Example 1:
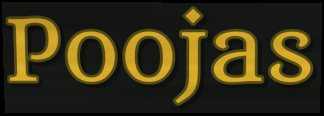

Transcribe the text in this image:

Poojas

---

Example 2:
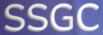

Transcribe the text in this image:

SSGC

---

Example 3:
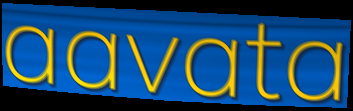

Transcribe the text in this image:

aavata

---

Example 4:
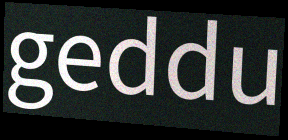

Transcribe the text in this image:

geddu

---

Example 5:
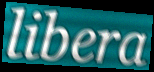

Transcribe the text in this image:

libera